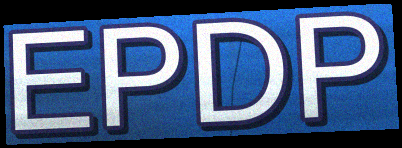
EPDP